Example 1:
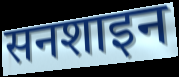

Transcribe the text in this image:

सनशाइन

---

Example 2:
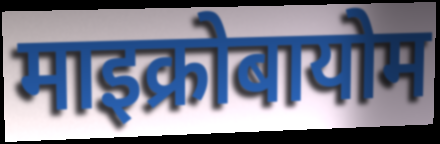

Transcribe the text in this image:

माइक्रोबायोम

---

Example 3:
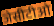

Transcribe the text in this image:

जेसीटीओ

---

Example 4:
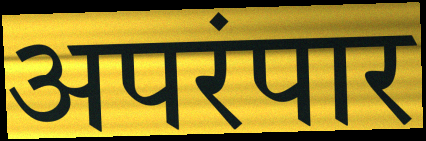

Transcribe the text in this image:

अपरंपार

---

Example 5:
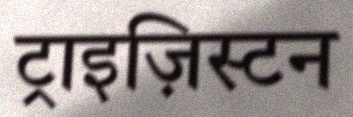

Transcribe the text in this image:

ट्राइज़िस्टन